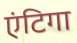
एंटिगा